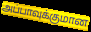
அப்பாவுக்குமான